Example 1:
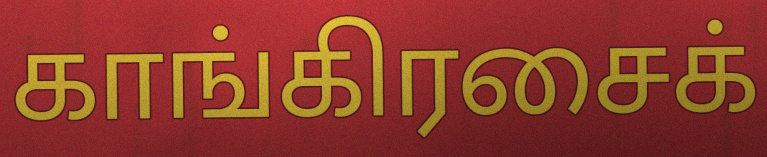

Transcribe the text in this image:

காங்கிரசைக்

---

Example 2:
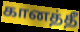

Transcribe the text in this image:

கானத்தீ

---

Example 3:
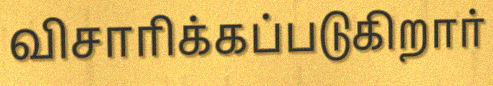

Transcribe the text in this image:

விசாரிக்கப்படுகிறார்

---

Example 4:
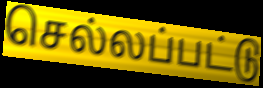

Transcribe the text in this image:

செல்லப்பட்டு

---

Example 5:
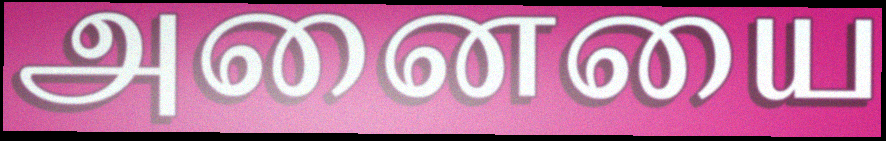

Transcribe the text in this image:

அனையை